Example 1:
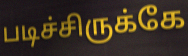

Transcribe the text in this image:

படிச்சிருக்கே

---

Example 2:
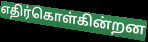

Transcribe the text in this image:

எதிர்கொள்கின்றன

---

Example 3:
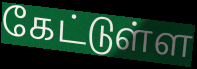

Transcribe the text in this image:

கேட்டுள்ள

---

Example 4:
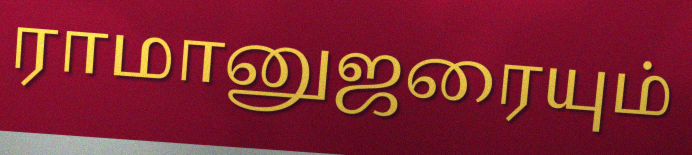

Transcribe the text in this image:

ராமானுஜரையும்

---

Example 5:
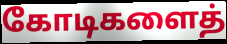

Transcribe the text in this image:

கோடிகளைத்